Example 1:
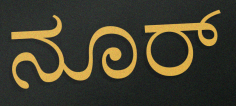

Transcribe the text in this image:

ನೂರ್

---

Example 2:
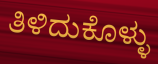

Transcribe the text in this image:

ತಿಳಿದುಕೊಳ್ಳು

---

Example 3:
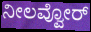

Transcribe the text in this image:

ನೀಲವ್ವೋರ್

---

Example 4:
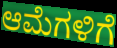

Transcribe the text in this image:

ಆಮೆಗಳಿಗೆ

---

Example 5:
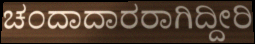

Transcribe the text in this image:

ಚಂದಾದಾರರಾಗಿದ್ದೀರಿ